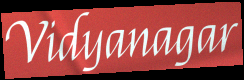
Vidyanagar